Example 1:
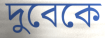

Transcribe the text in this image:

দুবেকে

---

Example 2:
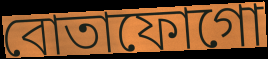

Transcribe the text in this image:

বোতাফোগো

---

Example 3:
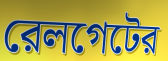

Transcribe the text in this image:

রেলগেটের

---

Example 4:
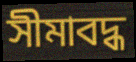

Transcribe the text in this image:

সীমাবদ্ধ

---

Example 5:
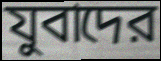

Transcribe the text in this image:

যুবাদের